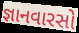
જ્ઞાનવારસો